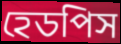
হেডপিস